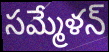
సమ్మేళన్